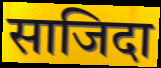
साजिदा